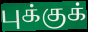
புக்குக்